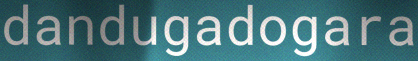
dandugadogara